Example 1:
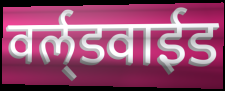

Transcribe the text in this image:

वर्ल्डवाईड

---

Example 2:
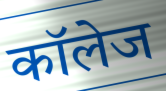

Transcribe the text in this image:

कॉलेज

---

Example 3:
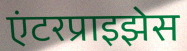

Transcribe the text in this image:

एंटरप्राइझेस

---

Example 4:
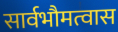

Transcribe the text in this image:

सार्वभौमत्वास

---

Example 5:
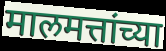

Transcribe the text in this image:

मालमत्तांच्या